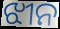
ଝୀନ